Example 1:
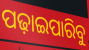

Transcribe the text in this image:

ପଢ଼ାଇପାରିବୁ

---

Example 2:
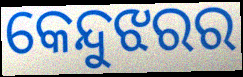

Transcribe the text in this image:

କେନ୍ଦୁଝରର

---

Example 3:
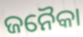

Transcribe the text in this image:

ଜନୈକା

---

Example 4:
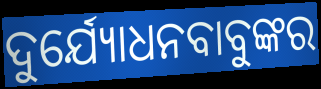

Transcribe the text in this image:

ଦୁର୍ଯ୍ୟୋଧନବାବୁଙ୍କର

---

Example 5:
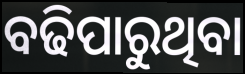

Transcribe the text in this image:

ବଢିପାରୁଥିବା